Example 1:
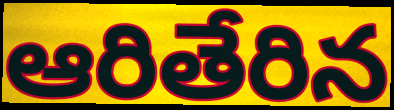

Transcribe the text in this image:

ఆరితేరిన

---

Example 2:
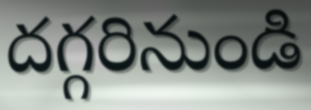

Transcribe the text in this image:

దగ్గరినుండి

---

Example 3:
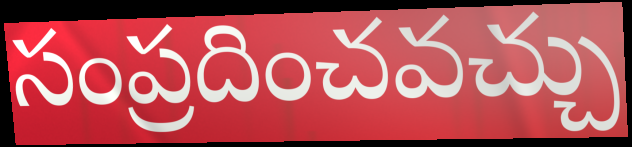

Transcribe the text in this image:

సంప్రదించవచ్చు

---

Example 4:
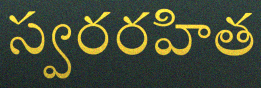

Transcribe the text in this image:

స్వరరహిత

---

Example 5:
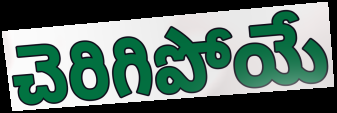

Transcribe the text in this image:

చెరిగిపోయే